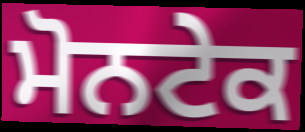
ਮੋਨਟੇਕ